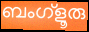
ബംഗ്ളൂരു